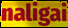
naligai